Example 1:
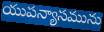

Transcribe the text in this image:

యుపన్యాసమును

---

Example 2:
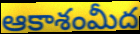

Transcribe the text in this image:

ఆకాశంమీద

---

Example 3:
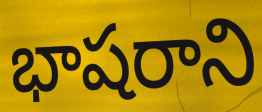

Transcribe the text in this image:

భాషరాని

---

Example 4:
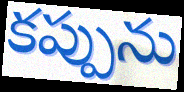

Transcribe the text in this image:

కప్పును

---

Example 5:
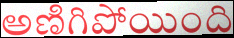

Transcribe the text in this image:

అణిగిపోయింది